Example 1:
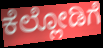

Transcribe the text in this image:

ಕೆಲ್ಲೋಡಿಗೆ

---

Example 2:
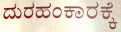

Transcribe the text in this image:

ದುರಹಂಕಾರಕ್ಕೆ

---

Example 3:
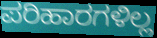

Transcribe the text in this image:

ಪರಿಹಾರಗಳಿಲ್ಲ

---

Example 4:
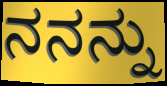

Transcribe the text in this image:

ನನನ್ನು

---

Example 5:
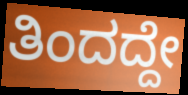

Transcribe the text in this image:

ತಿಂದದ್ದೇ